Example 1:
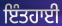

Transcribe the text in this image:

ਇੰਤਹਾਈ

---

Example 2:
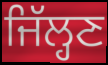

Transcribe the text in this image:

ਜਿੱਲ੍ਹਣ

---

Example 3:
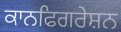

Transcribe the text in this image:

ਕਾਨਫਿਗਰੇਸ਼ਨ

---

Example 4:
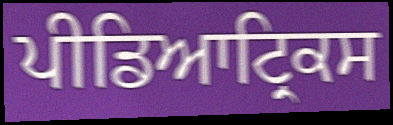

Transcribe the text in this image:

ਪੀਡਿਆਟ੍ਰਿਕਸ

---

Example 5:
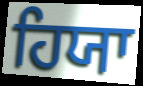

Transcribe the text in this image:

ਹਿਯਾ